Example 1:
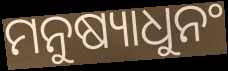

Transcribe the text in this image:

ମନୁଷ୍ୟାଧୁନଂ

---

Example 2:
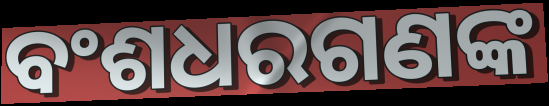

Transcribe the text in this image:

ବଂଶଧରଗଣଙ୍କ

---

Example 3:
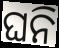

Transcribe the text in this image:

ଘନି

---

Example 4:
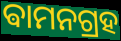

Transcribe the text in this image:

ଵାମନଗ୍ରହ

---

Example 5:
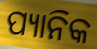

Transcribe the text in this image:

ପ୍ୟାନିକ